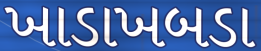
ખાડાખબડા